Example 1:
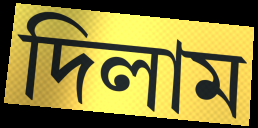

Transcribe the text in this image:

দিলাম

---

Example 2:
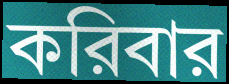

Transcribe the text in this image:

করিবার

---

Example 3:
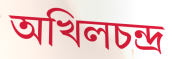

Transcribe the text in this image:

অখিলচন্দ্র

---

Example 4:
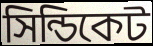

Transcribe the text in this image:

সিন্ডিকেট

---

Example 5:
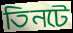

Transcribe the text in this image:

তিনটে